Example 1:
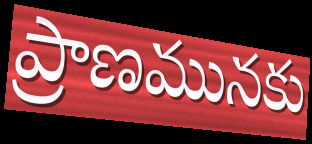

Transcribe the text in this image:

ప్రాణమునకు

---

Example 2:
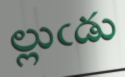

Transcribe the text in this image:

ల్లుఁడు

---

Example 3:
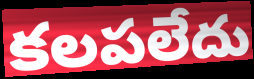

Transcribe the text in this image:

కలపలేదు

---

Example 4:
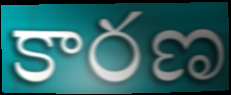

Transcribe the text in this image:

కారణ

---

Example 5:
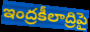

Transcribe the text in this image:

ఇంద్రకీలాద్రిపై